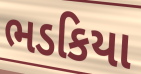
ભડકિયા